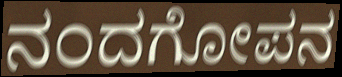
ನಂದಗೋಪನ